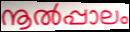
നൂൽപ്പാലം